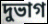
দুভাগ